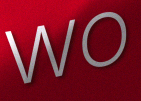
WO